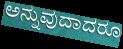
ಅನ್ನುವುದಾದರೂ